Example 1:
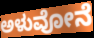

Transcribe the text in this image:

ಅಳುವೋನೆ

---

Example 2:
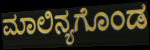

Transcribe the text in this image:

ಮಾಲಿನ್ಯಗೊಂಡ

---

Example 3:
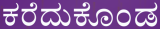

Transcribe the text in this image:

ಕರೆದುಕೊಂಡ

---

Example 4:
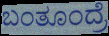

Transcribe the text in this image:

ಬಂತೂಂದ್ರೆ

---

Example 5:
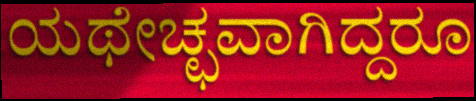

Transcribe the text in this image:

ಯಥೇಚ್ಛವಾಗಿದ್ದರೂ